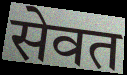
सेवत